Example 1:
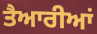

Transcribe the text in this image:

ਤੈਆਰੀਆਂ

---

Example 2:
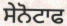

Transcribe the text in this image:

ਸੇਨੋਟਾਫ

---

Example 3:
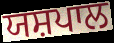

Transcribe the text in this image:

ਯਸ਼ਪਾਲ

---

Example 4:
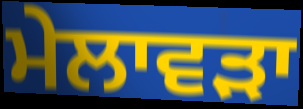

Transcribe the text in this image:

ਮੇਲਾਵੜਾ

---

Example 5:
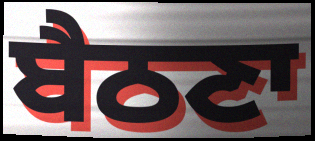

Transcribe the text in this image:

ਬੈਠਣਾ